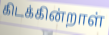
கிடக்கின்றாள்